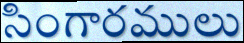
సింగారములు